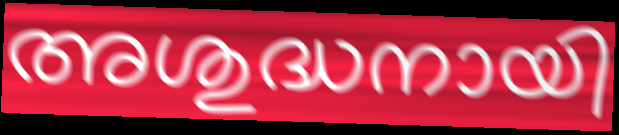
അശുദ്ധനായി